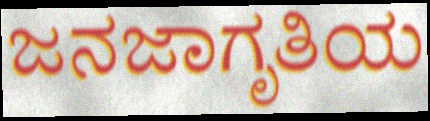
ಜನಜಾಗೃತಿಯ